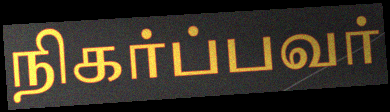
நிகர்ப்பவர்